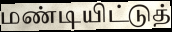
மண்டியிட்டுத்